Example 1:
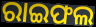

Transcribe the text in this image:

ରାଇଫଲ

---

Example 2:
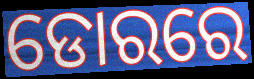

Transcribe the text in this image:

ଡୋରରେ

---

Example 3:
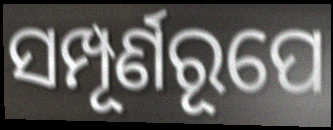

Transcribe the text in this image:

ସମ୍ପୂର୍ଣରୂପେ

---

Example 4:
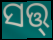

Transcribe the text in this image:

ସତ୍ତ୍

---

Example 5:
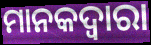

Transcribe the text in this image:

ମାନକଦ୍ୱାରା